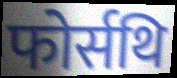
फोर्सथि